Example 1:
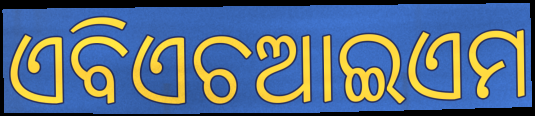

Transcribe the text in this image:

ଏବିଏଚଆଇଏମ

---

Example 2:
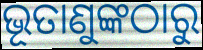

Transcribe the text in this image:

ଭୂତାଣୁଙ୍କଠାରୁ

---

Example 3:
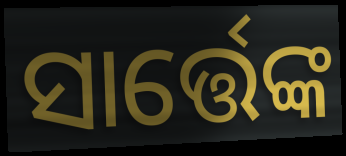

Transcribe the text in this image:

ସାର୍ତ୍ତେଙ୍କ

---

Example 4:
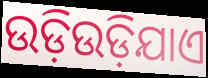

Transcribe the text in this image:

ଉଡ଼ିଉଡ଼ିଯାଏ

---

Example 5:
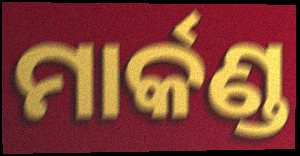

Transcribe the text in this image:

ମାର୍କଣ୍ଡ